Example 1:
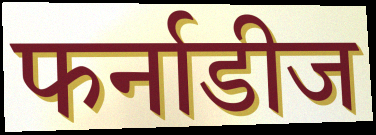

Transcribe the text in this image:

फर्नाडीज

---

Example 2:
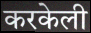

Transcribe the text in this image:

करकेली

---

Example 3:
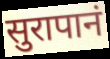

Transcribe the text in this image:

सुरापानं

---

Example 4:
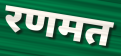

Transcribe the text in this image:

रणमत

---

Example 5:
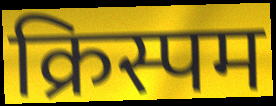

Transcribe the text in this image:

क्रिस्पम